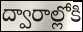
ద్వారాల్లోకి